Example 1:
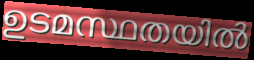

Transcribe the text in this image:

ഉടമസ്ഥതയിൽ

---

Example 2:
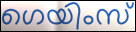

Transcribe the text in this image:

ഗെയിംസ്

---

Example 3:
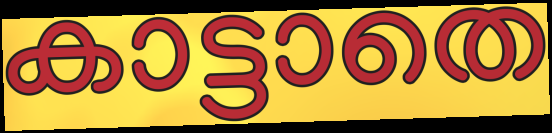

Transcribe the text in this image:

കാട്ടാതെ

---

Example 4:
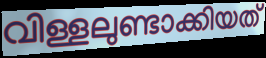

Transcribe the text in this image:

വിള്ളലുണ്ടാക്കിയത്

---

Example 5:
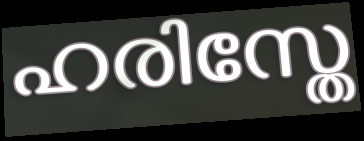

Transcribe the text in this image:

ഹരിസ്തേ